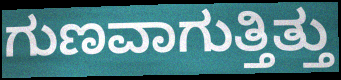
ಗುಣವಾಗುತ್ತಿತ್ತು